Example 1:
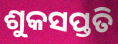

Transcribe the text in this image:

ଶୁକସପ୍ତତି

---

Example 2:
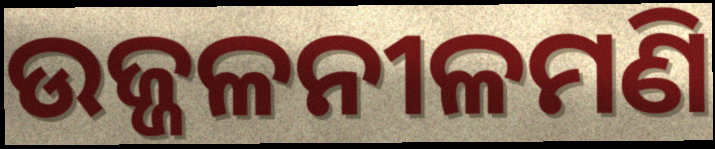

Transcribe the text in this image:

ଉଜ୍ଜଳନୀଳମଣି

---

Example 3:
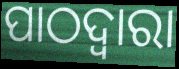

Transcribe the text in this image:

ପାଠଦ୍ଵାରା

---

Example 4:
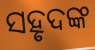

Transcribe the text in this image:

ସହୃଦଙ୍କ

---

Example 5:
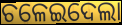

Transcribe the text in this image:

ଚଳେଇଦେଲା